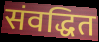
संवद्धित